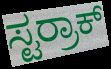
ಸ್ಟರ್ರಾಕ್